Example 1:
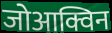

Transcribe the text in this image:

जोआक्विन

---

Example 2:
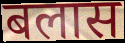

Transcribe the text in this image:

बलास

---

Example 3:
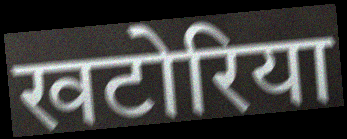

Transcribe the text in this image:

खटोरिया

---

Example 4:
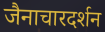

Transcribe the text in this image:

जैनाचारदर्शन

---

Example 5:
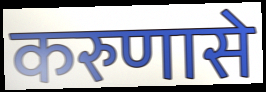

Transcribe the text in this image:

करुणासे